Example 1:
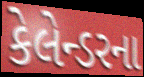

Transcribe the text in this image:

કેલેન્ડરના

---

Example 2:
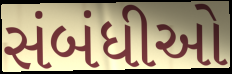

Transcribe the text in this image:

સંબંધીઓ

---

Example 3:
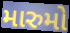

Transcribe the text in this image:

મારુમો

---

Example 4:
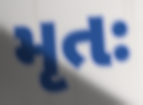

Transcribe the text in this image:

મૃતઃ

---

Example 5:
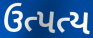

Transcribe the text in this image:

ઉત્પત્ય